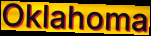
Oklahoma